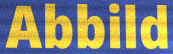
Abbild